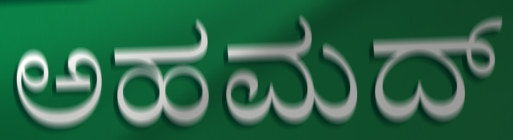
ಅಹಮದ್